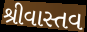
શ્રીવાસ્તવ